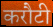
करौटी